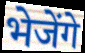
भेजेंगे